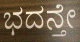
ಭದನ್ತೇ